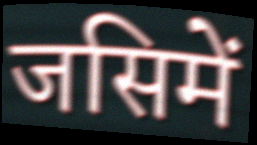
जसिमें